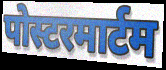
पोस्टरमार्टम